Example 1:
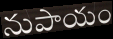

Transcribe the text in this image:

నుపాయం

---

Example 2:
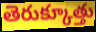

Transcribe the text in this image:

తెరుక్కూత్తు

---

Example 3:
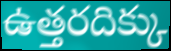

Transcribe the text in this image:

ఉత్తరదిక్కు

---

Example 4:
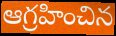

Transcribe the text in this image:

ఆగ్రహించిన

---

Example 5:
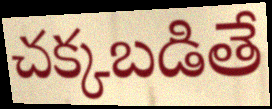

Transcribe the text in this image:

చక్కబడితే